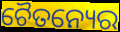
ଚୈତନ୍ୟେର